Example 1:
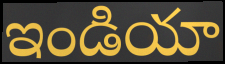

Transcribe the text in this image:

ఇండియా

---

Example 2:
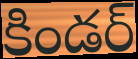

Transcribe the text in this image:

కిండర్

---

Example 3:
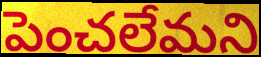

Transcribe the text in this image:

పెంచలేమని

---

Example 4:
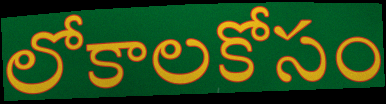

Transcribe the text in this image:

లోకాలకోసం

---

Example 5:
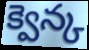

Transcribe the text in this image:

క్వెన్క